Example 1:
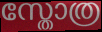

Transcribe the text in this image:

സ്തോത്ര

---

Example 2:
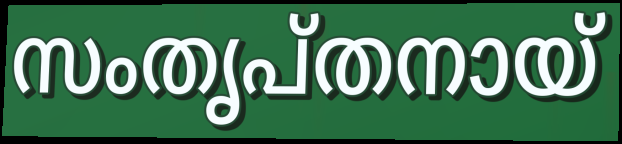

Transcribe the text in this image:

സംതൃപ്തനായ്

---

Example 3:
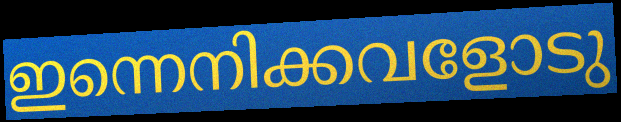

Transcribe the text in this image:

ഇന്നെനിക്കവളോടു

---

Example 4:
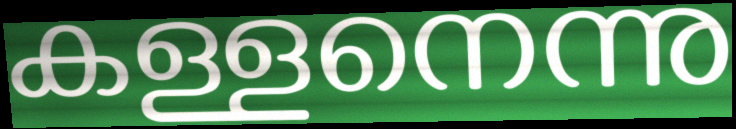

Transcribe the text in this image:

കള്ളനെന്നു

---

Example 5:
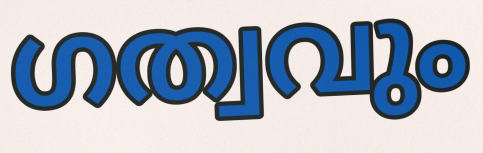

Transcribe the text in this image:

ഗത്വവും